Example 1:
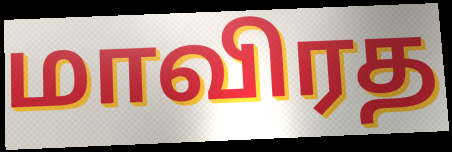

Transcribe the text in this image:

மாவிரத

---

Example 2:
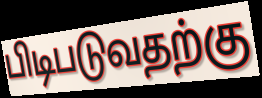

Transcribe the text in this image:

பிடிபடுவதற்கு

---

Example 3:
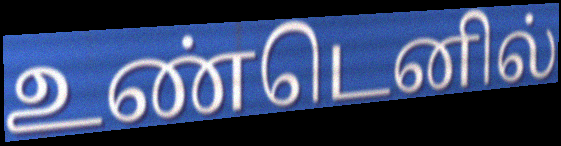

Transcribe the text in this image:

உண்டெனில்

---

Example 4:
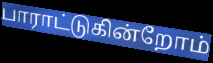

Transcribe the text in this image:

பாராட்டுகின்றோம்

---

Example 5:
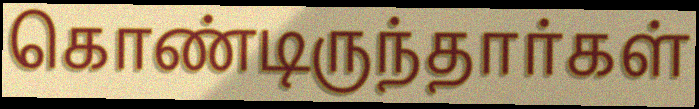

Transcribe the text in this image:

கொண்டிருந்தார்கள்